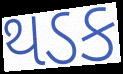
થડક